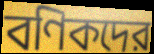
বণিকদের